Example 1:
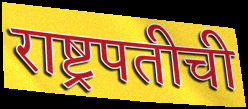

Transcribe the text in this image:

राष्ट्रपतीची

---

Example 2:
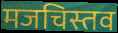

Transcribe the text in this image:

मजचिस्तव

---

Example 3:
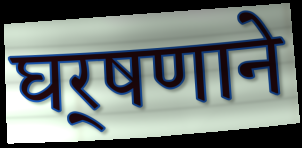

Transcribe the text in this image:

घर्षणाने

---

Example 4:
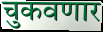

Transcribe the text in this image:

चुकवणार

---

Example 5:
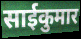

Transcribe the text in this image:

साईकुमार